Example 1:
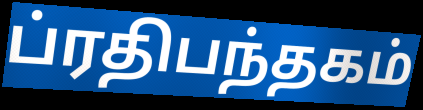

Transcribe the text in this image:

ப்ரதிபந்தகம்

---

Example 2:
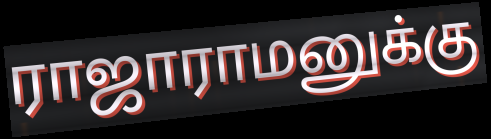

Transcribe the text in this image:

ராஜாராமனுக்கு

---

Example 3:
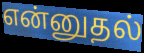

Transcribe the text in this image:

என்னுதல்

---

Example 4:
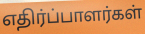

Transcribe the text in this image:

எதிர்ப்பாளர்கள்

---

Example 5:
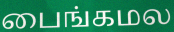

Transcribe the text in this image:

பைங்கமல